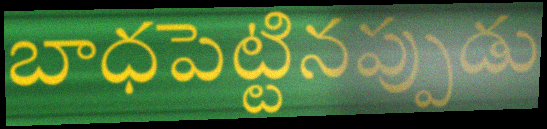
బాధపెట్టినప్పుడు